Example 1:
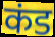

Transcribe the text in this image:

कंड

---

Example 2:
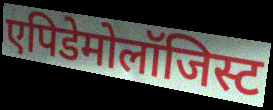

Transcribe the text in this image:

एपिडेमोलॉजिस्ट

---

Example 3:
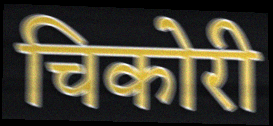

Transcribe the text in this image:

चिकोरी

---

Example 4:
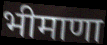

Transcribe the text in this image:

भीमाणा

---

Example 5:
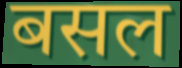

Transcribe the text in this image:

बसल